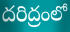
దరిద్రంలో